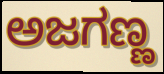
ಅಜಗಣ್ಣ